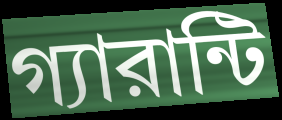
গ্যারান্টি